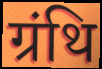
ग्रंथि